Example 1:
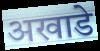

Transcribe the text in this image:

अखाडे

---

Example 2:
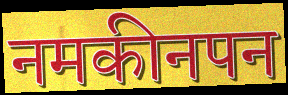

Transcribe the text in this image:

नमकीनपन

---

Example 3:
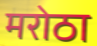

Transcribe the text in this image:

मरोठा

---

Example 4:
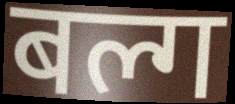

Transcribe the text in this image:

बल्ग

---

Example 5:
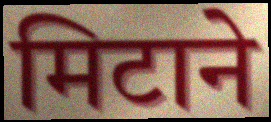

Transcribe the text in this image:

मिटाने